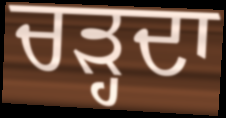
ਚੜ੍ਹਦਾ